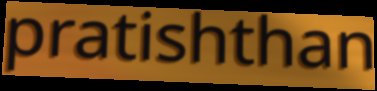
pratishthan